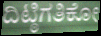
ದಿಟ್ಠಿಗತಿಕೋ